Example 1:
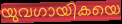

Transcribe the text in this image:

യുവഗായികയെ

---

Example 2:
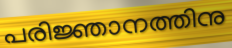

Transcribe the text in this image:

പരിജ്ഞാനത്തിനു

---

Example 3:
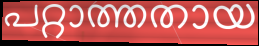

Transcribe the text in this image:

പറ്റാത്തതായ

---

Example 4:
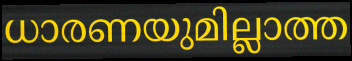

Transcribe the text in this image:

ധാരണയുമില്ലാത്ത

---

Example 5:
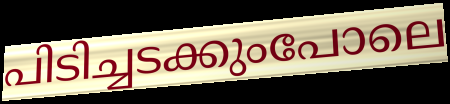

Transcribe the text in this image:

പിടിച്ചടക്കുംപോലെ